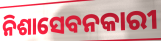
ନିଶାସେବନକାରୀ